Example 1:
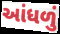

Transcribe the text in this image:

આંધળું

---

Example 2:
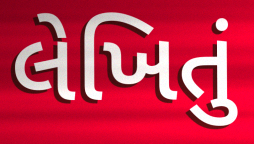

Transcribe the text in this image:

લેખિતું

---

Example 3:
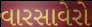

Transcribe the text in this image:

વારસાવેરો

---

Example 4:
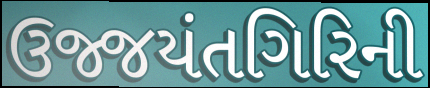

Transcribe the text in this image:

ઉજ્જયંતગિરિની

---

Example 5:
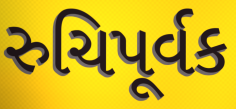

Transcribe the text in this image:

રુચિપૂર્વક